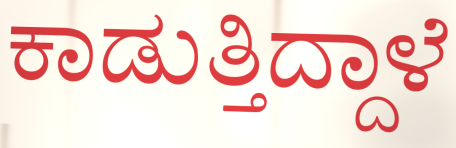
ಕಾಡುತ್ತಿದ್ದಾಳೆ